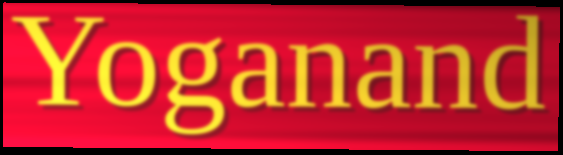
Yoganand